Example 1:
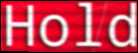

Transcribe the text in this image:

Hold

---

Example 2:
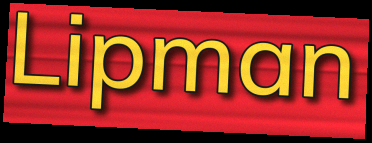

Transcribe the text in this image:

Lipman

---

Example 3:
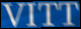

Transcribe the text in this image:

VITT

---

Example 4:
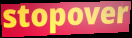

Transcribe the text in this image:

stopover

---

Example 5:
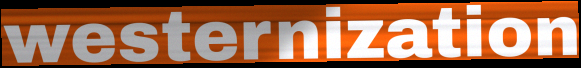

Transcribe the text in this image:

westernization